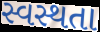
સ્વસ્થતા